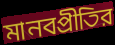
মানবপ্রীতির